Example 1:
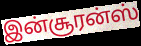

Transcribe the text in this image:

இன்சூரன்ஸ்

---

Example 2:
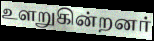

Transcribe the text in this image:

உளறுகின்றனர்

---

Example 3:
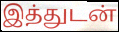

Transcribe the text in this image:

இத்துடன்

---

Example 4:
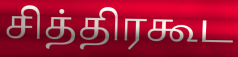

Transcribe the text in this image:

சித்திரகூட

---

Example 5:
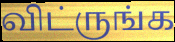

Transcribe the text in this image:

விட்ருங்க